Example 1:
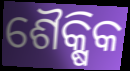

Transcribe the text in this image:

ଶୈକ୍ଷିକ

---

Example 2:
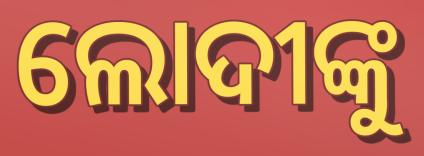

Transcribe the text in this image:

ଲୋଦୀଙ୍କୁ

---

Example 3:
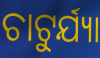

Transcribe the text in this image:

ଚାଟୁର୍ଯ୍ୟା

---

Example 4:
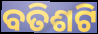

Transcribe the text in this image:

ବତିଶଟି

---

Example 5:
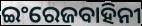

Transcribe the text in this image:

ଇଂରେଜବାହିନୀ